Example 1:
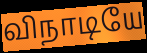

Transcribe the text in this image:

விநாடியே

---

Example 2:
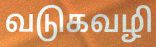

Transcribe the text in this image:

வடுகவழி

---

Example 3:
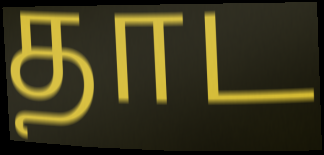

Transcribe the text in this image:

தாட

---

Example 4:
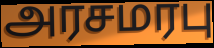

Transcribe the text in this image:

அரசமரபு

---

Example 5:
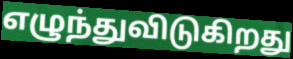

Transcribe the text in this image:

எழுந்துவிடுகிறது